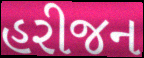
હરીજન